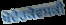
ਖੋਦੋਰਕੋਵਸਕੀ